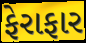
ફેરાફાર